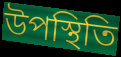
উপস্থিতি